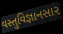
વસ્તુવિજ્ઞાનસાર